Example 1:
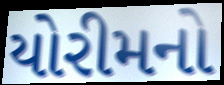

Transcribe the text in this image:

યોરીમનો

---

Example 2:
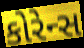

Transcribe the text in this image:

કોરેન્સ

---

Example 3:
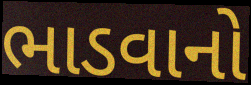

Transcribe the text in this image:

ભાડવાનો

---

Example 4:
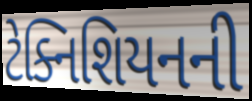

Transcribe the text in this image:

ટેક્નિશિયનની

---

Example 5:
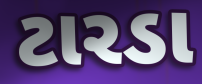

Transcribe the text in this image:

ટારડા